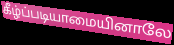
கீழ்ப்படியாமையினாலே